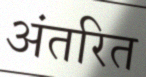
अंतरित